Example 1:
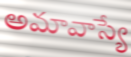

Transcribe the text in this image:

అమావాస్యే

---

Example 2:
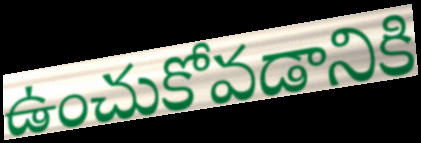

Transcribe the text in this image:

ఉంచుకోవడానికి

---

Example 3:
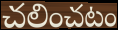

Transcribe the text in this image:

చలించటం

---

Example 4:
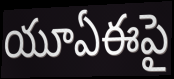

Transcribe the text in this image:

యూఏఈపై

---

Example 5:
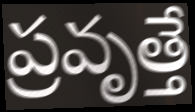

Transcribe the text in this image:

ప్రవృత్తే